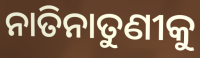
ନାତିନାତୁଣୀକୁ